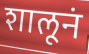
शालूनं